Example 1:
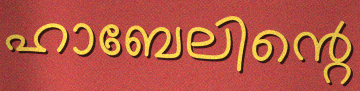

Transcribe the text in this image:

ഹാബേലിന്റെ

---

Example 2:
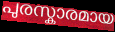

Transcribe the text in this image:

പുരസ്കാരമായ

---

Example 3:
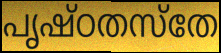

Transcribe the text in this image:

പൃഷ്ഠതസ്തേ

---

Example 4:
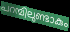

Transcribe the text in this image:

പറമ്പിലുണ്ടാകും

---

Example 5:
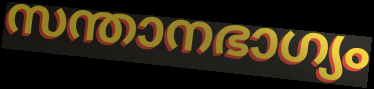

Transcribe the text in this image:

സന്താനഭാഗ്യം